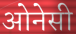
ओनेसी